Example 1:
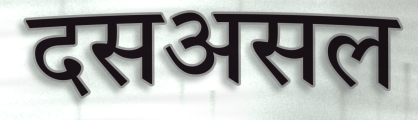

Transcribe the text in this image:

दसअसल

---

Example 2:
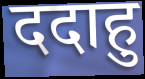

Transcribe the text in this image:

ददाहु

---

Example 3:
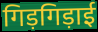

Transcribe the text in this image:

गिड़गिड़ाई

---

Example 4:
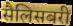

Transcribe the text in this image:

सैलिसबरी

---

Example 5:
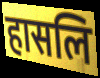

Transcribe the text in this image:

हासलि